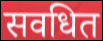
सवधित